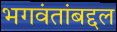
भगवंतांबद्दल